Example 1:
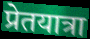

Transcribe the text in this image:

प्रेतयात्रा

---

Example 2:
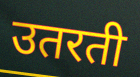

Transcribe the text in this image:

उतरती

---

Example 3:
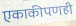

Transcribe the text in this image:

एकाकीपणही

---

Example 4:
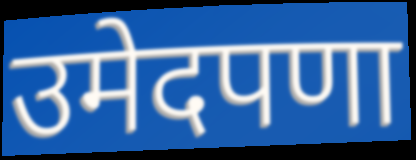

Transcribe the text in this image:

उमेदपणा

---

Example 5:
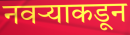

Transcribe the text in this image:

नवऱ्याकडून